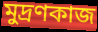
মুদ্রণকাজ